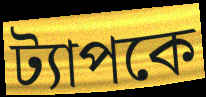
ট্যাপকে